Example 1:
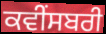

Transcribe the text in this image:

ਕਵੀਂਸਬਰੀ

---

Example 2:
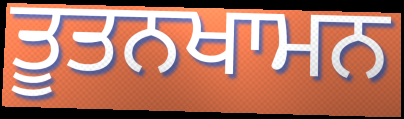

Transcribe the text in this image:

ਤੂਤਨਖਾਮਨ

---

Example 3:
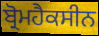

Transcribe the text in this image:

ਬ੍ਰੋਮਹੈਕਸੀਨ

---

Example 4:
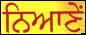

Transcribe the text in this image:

ਨਿਆਣੇਂ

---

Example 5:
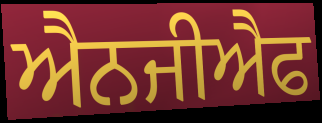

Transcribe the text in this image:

ਐਨਜੀਐਫ